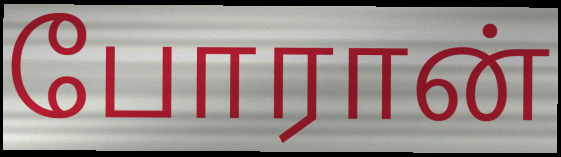
போரான்